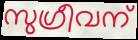
സുഗ്രീവന്